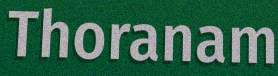
Thoranam